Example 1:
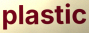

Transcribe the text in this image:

plastic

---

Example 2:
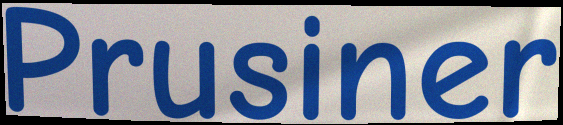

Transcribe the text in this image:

Prusiner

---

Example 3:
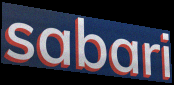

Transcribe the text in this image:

sabari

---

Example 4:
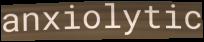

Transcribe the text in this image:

anxiolytic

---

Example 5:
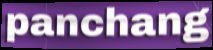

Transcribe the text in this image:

panchang